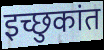
इच्छुकांत